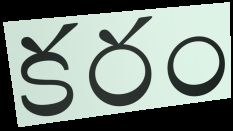
కరం